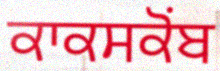
ਕਾਕਸਕੋਂਬ